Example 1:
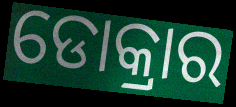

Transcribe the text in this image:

ଡୋକ୍ରାର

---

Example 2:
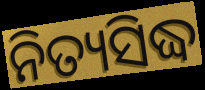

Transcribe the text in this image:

ନିତ୍ୟସିଦ୍ଧ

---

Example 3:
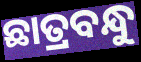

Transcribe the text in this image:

ଛାତ୍ରବନ୍ଧୁ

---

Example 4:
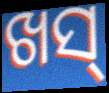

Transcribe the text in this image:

ଖସ୍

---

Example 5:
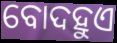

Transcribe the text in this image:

ବୋଦହୁଏ